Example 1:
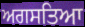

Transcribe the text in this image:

ਅਗਸਤਿਆ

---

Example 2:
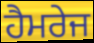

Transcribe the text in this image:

ਹੈਮਰੇਜ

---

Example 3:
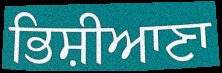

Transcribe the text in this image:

ਭਿਸ਼ੀਆਣਾ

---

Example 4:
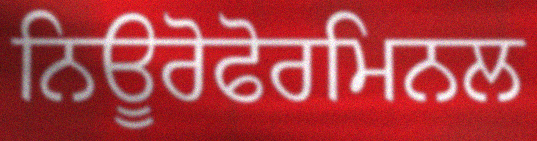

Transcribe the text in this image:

ਨਿਊਰੋਫੋਰਮਿਨਲ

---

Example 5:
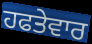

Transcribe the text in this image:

ਹਫਤੇਵਾਰ